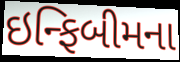
ઇન્ફિબીમના